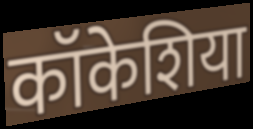
कॉकेशिया